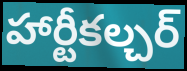
హార్టీకల్చర్